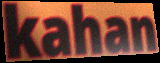
kahan